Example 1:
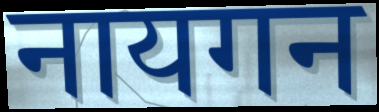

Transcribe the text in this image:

नायगन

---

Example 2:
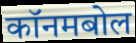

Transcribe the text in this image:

कॉनमबोल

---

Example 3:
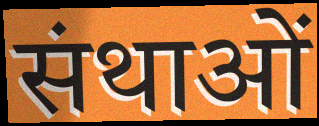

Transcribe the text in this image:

संथाओं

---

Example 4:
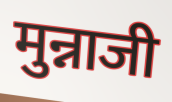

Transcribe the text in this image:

मुन्नाजी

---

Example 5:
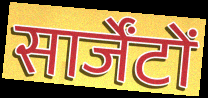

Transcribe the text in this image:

सार्जेंटों